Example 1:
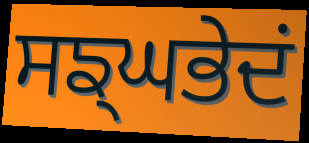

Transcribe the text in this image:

ਸਙ੍ਘਭੇਦਂ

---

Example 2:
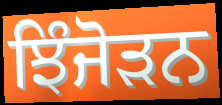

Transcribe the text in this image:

ਝਿੰਜੋੜਨ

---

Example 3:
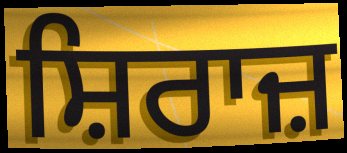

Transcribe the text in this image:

ਸ਼ਿਰਾਜ਼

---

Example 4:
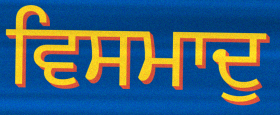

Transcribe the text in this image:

ਵਿਸਮਾਦੁ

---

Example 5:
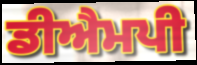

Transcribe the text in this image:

ਡੀਐਮਪੀ